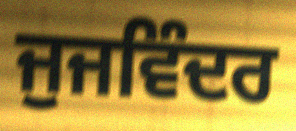
ਜੁਜਵਿੰਦਰ